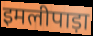
इमलीपाड़ा